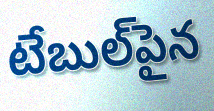
టేబుల్‌పైన